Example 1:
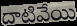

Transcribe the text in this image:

దాటివేయి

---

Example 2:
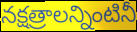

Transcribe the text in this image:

నక్షత్రాలన్నింటినీ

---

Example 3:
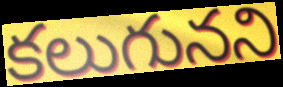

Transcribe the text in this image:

కలుగునని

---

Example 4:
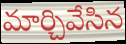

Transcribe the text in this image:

మార్చివేసిన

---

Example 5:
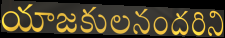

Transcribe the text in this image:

యాజకులనందరిని